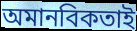
অমানবিকতাই